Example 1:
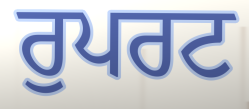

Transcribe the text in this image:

ਰੁਪਰਟ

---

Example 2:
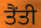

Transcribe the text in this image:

ਤੈਂਤੀ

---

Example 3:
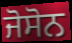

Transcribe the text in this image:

ਜੋਸੋਨ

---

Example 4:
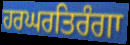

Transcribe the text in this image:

ਹਰਘਰਤਿਰੰਗਾ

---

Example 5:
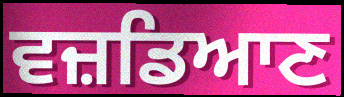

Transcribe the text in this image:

ਵਜ਼ਡਿਆਣ